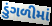
ડુંગળીમાં